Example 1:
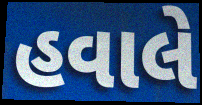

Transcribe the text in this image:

હવાલે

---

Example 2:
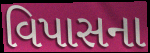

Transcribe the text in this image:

વિપાસના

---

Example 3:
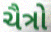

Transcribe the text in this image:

ચૈત્રો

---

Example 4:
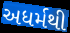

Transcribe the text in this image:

અધર્મથી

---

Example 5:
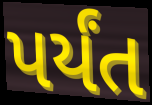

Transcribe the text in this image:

પર્યંત